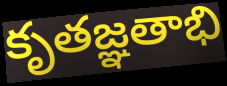
కృతజ్ఞతాభి